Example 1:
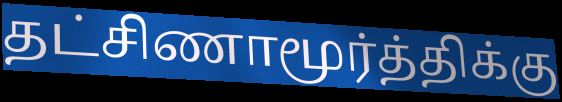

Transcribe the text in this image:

தட்சிணாமூர்த்திக்கு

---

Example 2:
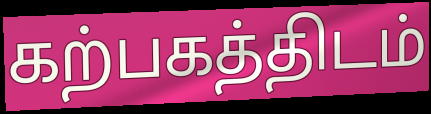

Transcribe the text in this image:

கற்பகத்திடம்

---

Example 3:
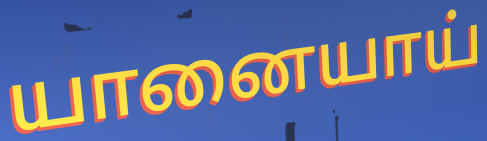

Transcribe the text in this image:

யானையாய்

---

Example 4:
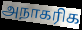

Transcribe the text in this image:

அநாகரிக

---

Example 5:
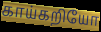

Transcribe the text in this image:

காய்கறியோ